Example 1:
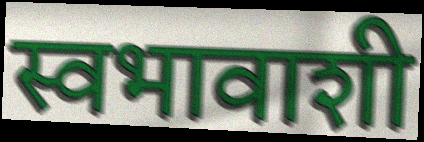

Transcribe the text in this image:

स्वभावाशी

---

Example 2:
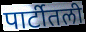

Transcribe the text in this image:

पार्टीतली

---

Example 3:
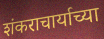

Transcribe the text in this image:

शंकराचार्याच्या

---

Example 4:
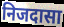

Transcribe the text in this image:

निजदासा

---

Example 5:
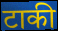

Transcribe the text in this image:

टाकी